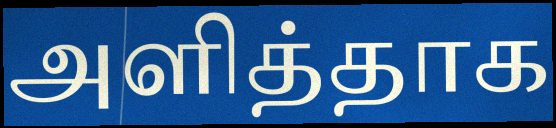
அளித்தாக